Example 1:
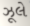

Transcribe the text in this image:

ઝૂલે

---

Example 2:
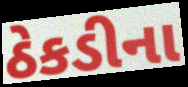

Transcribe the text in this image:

ઠેકડીના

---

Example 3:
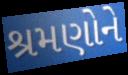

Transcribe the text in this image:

શ્રમણોને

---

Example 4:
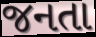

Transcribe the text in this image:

જનતા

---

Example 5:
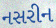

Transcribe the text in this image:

નસરીન